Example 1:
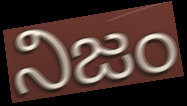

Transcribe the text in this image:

నిజం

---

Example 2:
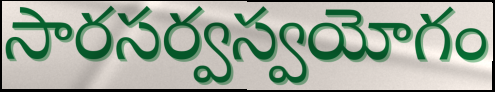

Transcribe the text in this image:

సారసర్వస్వయోగం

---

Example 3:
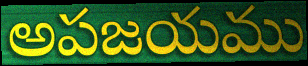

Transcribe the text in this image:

అపజయము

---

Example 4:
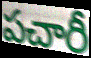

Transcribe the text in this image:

పచారీ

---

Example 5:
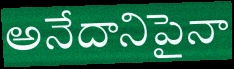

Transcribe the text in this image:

అనేదానిపైనా